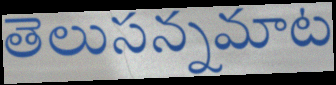
తెలుసన్నమాట